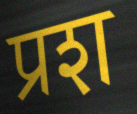
प्रश